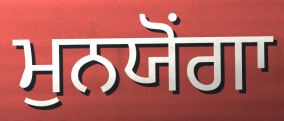
ਮੁਨਯੋਂਗਾ